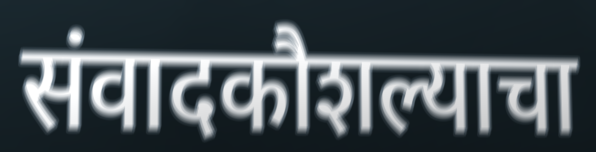
संवादकौशल्याचा